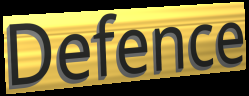
Defence